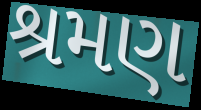
શ્રમણ